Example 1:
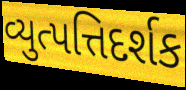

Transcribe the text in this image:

વ્યુત્પત્તિદર્શક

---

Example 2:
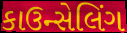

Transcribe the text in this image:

કાઉન્સેલિંગ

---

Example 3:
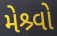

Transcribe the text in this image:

મેશ્ર્વો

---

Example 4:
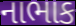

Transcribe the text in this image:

નાભાક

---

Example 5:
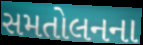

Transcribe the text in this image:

સમતોલનના